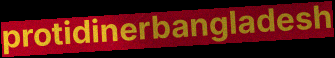
protidinerbangladesh